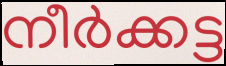
നീർക്കട്ട